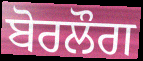
ਬੋਰਲੌਗ